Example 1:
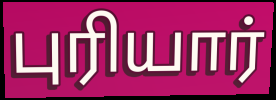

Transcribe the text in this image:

புரியார்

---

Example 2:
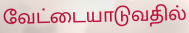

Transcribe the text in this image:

வேட்டையாடுவதில்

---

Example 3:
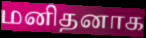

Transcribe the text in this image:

மனிதனாக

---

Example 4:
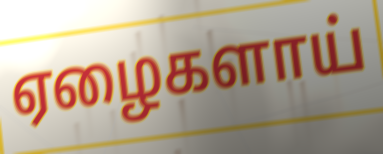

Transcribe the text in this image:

ஏழைகளாய்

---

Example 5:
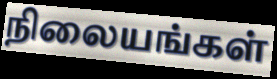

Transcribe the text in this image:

நிலையங்கள்